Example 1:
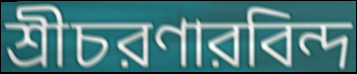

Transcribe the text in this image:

শ্রীচরণারবিন্দ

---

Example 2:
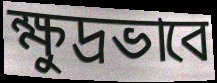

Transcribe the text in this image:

ক্ষুদ্রভাবে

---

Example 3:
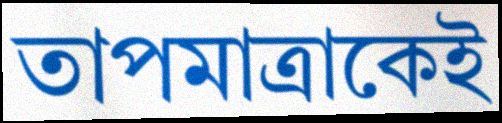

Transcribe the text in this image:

তাপমাত্রাকেই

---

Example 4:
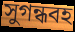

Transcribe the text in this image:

সুগন্ধবহ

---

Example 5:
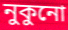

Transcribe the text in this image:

নুকুনো